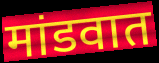
मांडवात